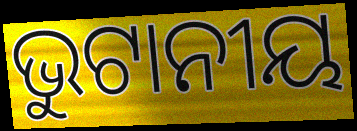
ଭୁଟାନୀୟ